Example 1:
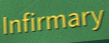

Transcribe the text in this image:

Infirmary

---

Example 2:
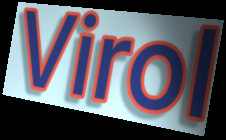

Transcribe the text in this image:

Virol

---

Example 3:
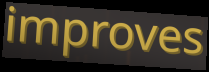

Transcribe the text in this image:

improves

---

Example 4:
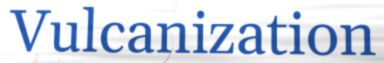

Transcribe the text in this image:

Vulcanization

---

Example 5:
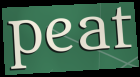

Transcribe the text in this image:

peat